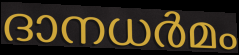
ദാനധർമം